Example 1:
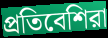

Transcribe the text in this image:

প্রতিবেশিরা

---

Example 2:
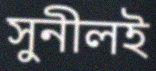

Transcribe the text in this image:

সুনীলই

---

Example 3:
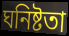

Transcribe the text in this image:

ঘনিষ্টতা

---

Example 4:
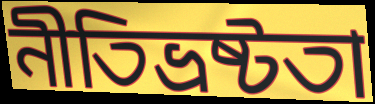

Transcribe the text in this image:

নীতিভ্রষ্টতা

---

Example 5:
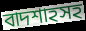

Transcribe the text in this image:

বাদশাহসহ